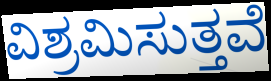
ವಿಶ್ರಮಿಸುತ್ತವೆ